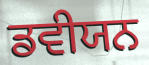
ਡਵੀਯਨ